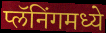
प्लॅनिंगमध्ये